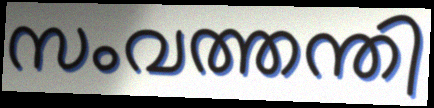
സംവത്തന്തി